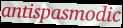
antispasmodic